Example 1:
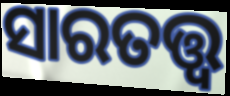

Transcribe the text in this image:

ସାରତତ୍ତ୍ଵ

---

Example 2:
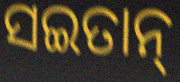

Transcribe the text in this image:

ସଇତାନ୍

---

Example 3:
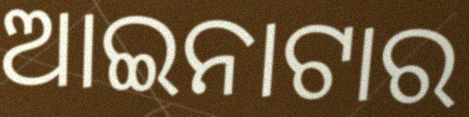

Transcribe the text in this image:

ଆଇନାଟାର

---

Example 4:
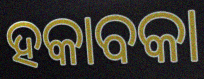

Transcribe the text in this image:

ହକାବକା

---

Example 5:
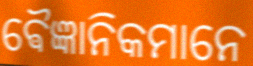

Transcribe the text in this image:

ଵୈଜ୍ଞାନିକମାନେ